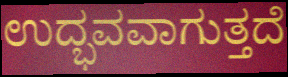
ಉದ್ಭವವಾಗುತ್ತದೆ